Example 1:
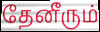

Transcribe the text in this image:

தேனீரும்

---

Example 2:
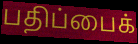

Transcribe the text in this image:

பதிப்பைக்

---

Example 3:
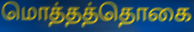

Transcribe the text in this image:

மொத்தத்தொகை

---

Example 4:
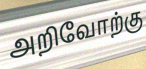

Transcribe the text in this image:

அறிவோற்கு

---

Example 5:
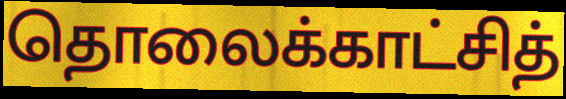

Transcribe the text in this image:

தொலைக்காட்சித்